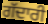
ਗੱਦਾਰੀ